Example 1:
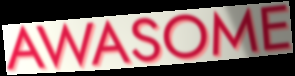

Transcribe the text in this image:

AWASOME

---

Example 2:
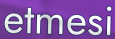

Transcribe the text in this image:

etmesi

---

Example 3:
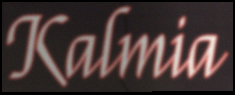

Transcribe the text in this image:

Kalmia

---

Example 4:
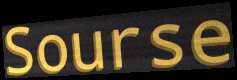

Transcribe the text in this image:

Sourse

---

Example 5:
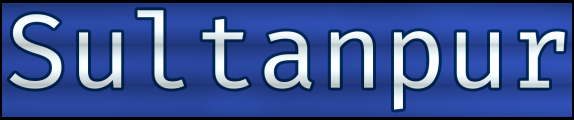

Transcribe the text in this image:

Sultanpur